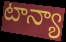
టాన్యా